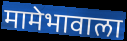
मामेभावाला